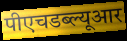
पीएचडब्ल्यूआर